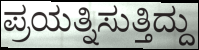
ಪ್ರಯತ್ನಿಸುತ್ತಿದ್ದು